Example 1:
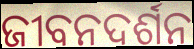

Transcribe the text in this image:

ଜୀବନଦର୍ଶନ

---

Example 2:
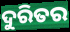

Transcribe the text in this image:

ଦୁରିତର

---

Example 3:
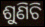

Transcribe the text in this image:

ଶୁଣିଚି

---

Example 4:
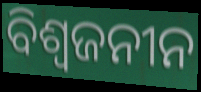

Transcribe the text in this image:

ବିଶ୍ୱଜନୀନ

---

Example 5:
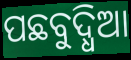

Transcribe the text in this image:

ପଛବୁଦ୍ଧିଆ